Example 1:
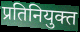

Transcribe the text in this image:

प्रतिनियुक्त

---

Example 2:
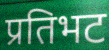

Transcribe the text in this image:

प्रतिभट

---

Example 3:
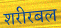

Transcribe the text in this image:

शरीरबल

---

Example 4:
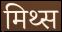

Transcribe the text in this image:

मिथ्स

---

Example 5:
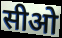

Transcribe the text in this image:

सीओ